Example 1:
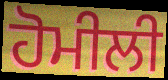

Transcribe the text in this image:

ਹੋਮੀਲੀ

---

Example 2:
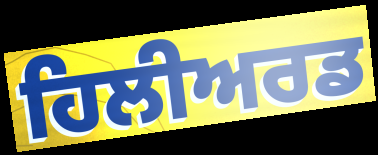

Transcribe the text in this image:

ਹਿਲੀਅਰਡ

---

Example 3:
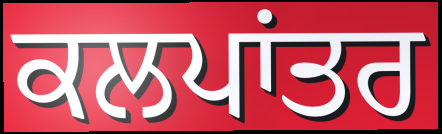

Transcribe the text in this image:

ਕਲਪਾਂਤਰ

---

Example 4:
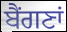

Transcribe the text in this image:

ਬੈਂਗਣਾਂ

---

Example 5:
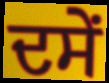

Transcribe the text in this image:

ਦਸੇਂ